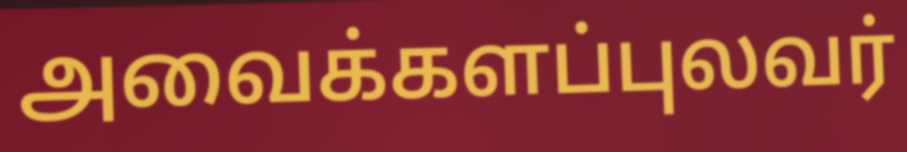
அவைக்களப்புலவர்